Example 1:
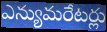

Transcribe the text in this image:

ఎన్యుమరేటర్లు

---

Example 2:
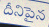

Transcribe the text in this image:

దీనిపైన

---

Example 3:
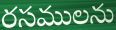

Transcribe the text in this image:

రసములను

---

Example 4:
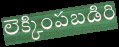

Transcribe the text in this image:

లెక్కింపబడిరి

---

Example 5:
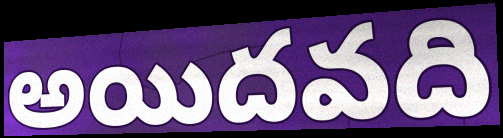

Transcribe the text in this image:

అయిదవది